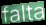
falta